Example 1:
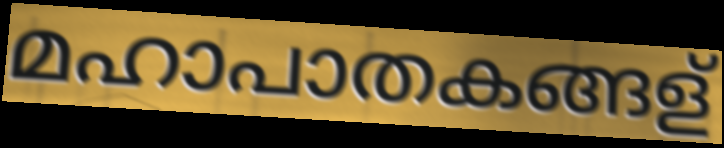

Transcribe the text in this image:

മഹാപാതകങ്ങള്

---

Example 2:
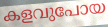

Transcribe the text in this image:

കളവുപോയ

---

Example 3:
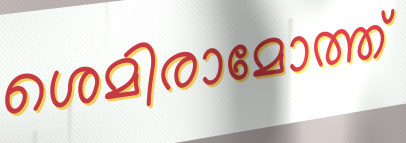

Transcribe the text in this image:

ശെമിരാമോത്ത്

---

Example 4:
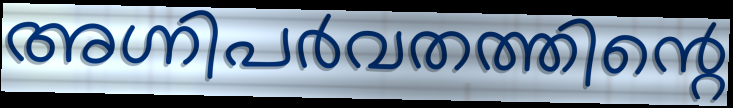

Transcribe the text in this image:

അഗ്നിപർവതത്തിന്റെ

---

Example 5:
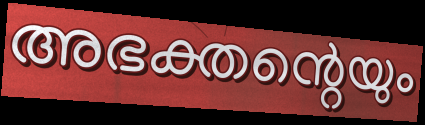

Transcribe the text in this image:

അഭക്തന്റെയും